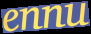
ennu